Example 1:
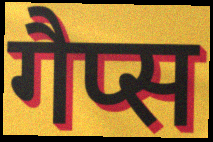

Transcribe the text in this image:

गैप्स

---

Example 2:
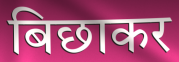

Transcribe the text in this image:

बिछाकर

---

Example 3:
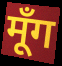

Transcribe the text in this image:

मूँग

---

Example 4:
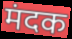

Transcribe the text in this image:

मंदक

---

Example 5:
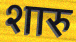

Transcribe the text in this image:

शारु